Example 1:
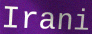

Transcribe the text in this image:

Irani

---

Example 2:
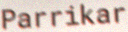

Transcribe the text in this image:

Parrikar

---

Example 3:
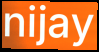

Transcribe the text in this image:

nijay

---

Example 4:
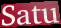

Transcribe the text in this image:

Satu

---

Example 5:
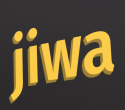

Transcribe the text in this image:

jiwa